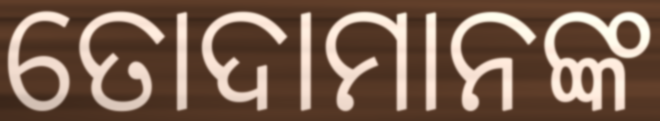
ତୋଦାମାନଙ୍କ